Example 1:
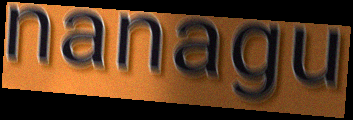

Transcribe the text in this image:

nanagu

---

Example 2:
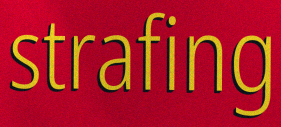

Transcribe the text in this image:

strafing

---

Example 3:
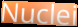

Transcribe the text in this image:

Nuclei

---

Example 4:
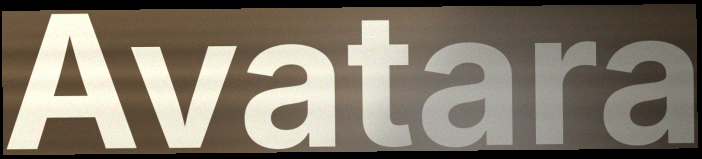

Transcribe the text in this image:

Avatara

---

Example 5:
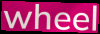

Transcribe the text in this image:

wheel